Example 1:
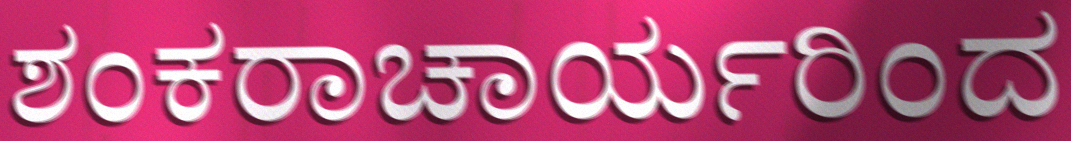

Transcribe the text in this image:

ಶಂಕರಾಚಾರ್ಯರಿಂದ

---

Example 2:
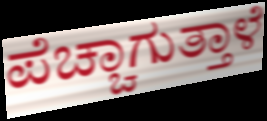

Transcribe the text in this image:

ಪೆಚ್ಚಾಗುತ್ತಾಳೆ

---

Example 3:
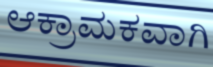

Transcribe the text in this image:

ಆಕ್ರಾಮಕವಾಗಿ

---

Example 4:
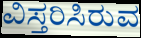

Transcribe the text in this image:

ವಿಸ್ತರಿಸಿರುವ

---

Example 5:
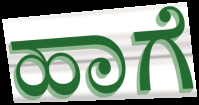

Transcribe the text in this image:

ಹಾಗೆ